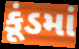
કૂંડમાં